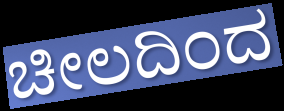
ಚೀಲದಿಂದ